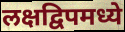
लक्षद्विपमध्ये